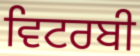
ਵਿਟਰਬੀ